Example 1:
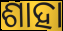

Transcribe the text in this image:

ଶାହା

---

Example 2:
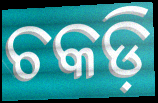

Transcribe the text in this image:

ଚକଡ଼ି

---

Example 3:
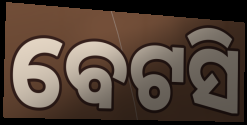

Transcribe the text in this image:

ବେଟସି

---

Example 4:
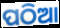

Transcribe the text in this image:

ପଠିଆ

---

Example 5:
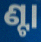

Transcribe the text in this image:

ଣ୍ଟା